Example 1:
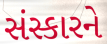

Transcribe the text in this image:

સંસ્કારને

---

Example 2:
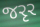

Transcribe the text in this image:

જરૃર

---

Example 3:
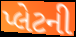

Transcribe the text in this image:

પ્લેટની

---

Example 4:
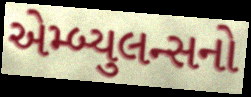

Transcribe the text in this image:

એમ્બ્યુલન્સનો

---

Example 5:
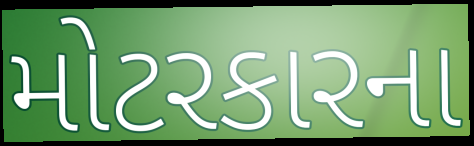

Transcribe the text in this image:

મોટરકારના